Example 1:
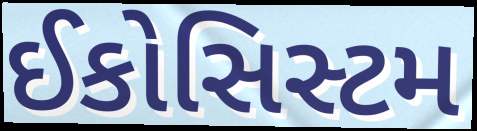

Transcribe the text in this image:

ઈકોસિસ્ટમ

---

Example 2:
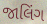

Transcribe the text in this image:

જાલિંગ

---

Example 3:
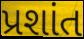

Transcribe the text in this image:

પ્રશાંત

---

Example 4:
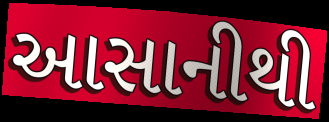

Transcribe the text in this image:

આસાનીથી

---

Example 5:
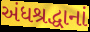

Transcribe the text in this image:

અંધશ્રદ્ધાનાં